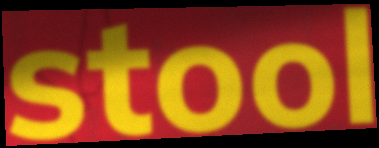
stool